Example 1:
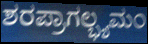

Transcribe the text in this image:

ಶರಪ್ರಾಗಲ್ಭ್ಯಮಂ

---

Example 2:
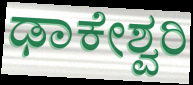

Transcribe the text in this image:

ಢಾಕೇಶ್ವರಿ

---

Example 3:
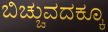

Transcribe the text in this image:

ಬಿಚ್ಚುವದಕ್ಕೂ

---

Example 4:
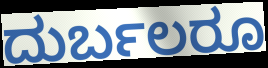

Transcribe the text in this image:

ದುರ್ಬಲರೂ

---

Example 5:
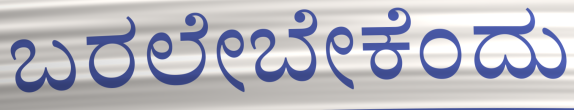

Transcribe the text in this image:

ಬರಲೇಬೇಕೆಂದು